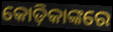
କୋଡ଼ିକାଙ୍କରେ